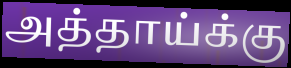
அத்தாய்க்கு